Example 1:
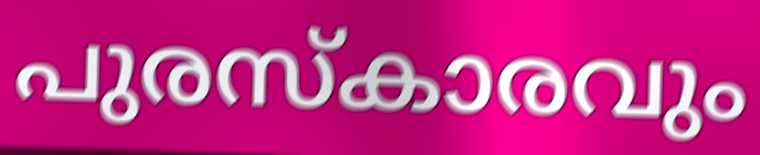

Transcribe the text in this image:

പുരസ്കാരവും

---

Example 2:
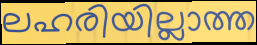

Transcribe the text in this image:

ലഹരിയില്ലാത്ത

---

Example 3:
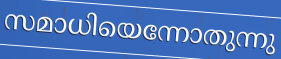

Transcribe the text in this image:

സമാധിയെന്നോതുന്നു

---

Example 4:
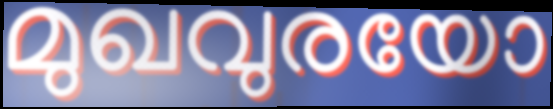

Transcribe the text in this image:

മുഖവുരയോ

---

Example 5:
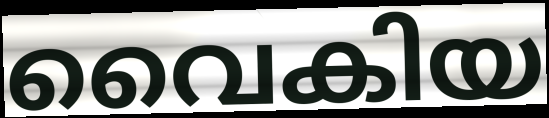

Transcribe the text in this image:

വൈകിയ